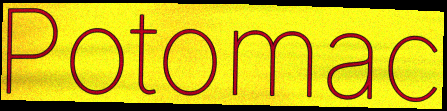
Potomac